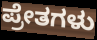
ಪ್ರೇತಗಳು